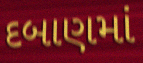
દબાણમાં